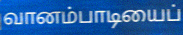
வானம்பாடியைப்